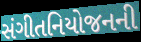
સંગીતનિયોજનની